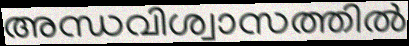
അന്ധവിശ്വാസത്തിൽ